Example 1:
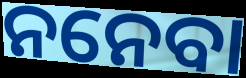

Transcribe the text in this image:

ନନେବା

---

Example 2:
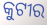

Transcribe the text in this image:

କୁଟୀର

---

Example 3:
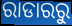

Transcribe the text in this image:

ରାଡାରରୁ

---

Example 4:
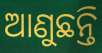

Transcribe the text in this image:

ଆଣୁଛନ୍ତି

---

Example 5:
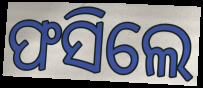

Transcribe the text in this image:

ଫସିଲେ